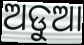
ଅଡୁଆ